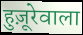
हुज़ूरेवाला